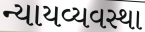
ન્યાયવ્યવસ્થા